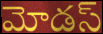
మోడస్